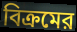
বিক্রমের